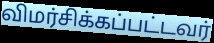
விமர்சிக்கப்பட்டவர்